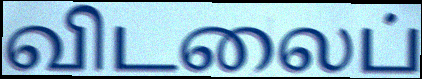
விடலைப்